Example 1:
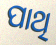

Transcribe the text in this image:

ପାଥି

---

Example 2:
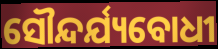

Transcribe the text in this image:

ସୌନ୍ଦର୍ଯ୍ୟବୋଧୀ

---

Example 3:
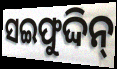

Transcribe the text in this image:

ସଇଫୁଦ୍ଦିନ୍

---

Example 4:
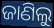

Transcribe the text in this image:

ଜାଣିଲୁ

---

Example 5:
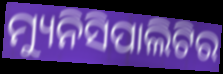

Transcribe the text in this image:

ମ୍ୟୁନିସିପାଲିଟିର